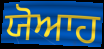
ਯੋਆਹ